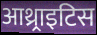
आथ्र्राइटिस